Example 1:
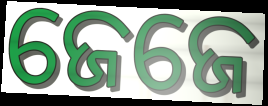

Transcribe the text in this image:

ଜେଜେ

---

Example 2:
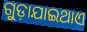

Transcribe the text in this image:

ଗୁଡ଼ାଯାଇଥାଏ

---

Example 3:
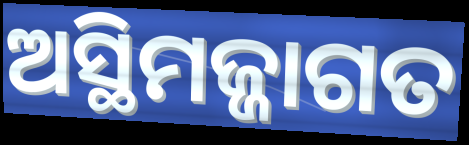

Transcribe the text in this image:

ଅସ୍ଥିମଜ୍ଜାଗତ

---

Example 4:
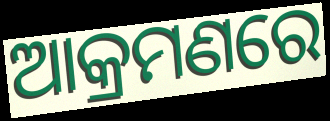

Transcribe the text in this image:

ଆକ୍ରମଣରେ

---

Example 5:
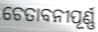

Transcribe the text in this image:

ଚେତାବନୀପୂର୍ଣ୍ଣ